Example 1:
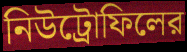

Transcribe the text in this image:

নিউট্রোফিলের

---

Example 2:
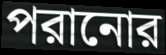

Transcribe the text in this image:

পরানোর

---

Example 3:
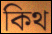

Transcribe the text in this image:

কিথ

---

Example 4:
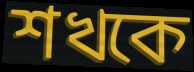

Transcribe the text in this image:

শখকে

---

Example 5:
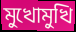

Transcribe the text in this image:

মুখোমুখি